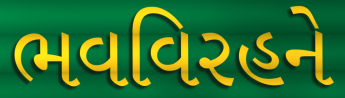
ભવવિરહને